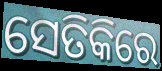
ସେତିକିରେ